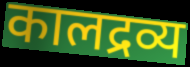
कालद्रव्य